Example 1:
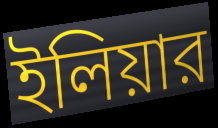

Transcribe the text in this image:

ইলিয়ার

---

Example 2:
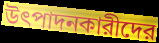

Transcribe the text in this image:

উৎপাদনকারীদের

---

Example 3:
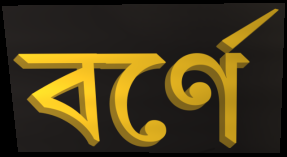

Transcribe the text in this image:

বর্ণে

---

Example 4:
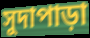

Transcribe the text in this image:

সুদাপাড়া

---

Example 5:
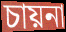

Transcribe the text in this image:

চায়না